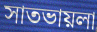
সাতভায়লা